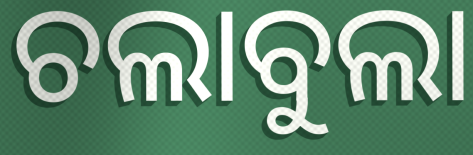
ଚଲାବୁଲା